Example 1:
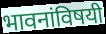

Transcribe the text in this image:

भावनांविषयी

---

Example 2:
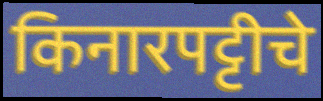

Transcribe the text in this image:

किनारपट्टीचे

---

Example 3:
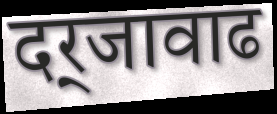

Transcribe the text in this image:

दर्जावाढ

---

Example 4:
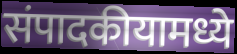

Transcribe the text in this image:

संपादकीयामध्ये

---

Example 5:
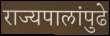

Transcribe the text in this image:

राज्यपालांपुढे